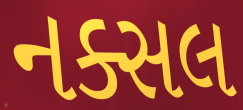
નક્સલ